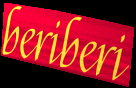
beriberi